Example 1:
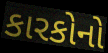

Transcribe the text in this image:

કારકોનો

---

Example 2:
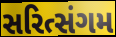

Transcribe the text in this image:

સરિત્સંગમ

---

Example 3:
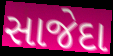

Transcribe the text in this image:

સાજેદા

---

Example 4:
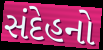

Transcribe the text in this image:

સંદેહનો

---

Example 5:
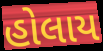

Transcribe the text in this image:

હોલાય